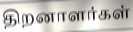
திறனாளர்கள்